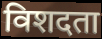
विशदता